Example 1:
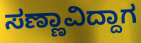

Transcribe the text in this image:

ಸಣ್ಣಾವಿದ್ದಾಗ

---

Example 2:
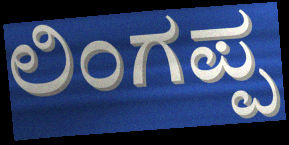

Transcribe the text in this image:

ಲಿಂಗಪ್ಪ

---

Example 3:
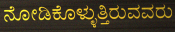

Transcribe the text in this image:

ನೋಡಿಕೊಳ್ಳುತ್ತಿರುವವರು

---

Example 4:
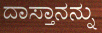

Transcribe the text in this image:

ದಾಸ್ತಾನನ್ನು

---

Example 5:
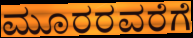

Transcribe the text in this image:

ಮೂರರವರೆಗೆ